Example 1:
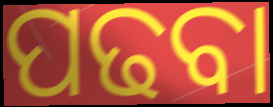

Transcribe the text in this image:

ପଢବା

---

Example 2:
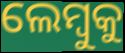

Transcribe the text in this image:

ଲେମ୍ବୁକୁ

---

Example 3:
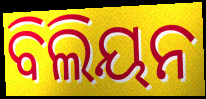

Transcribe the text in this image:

ବିଲିୟନ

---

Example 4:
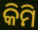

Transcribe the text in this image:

କିମି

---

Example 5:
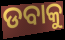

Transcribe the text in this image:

ଡବାକୁ